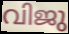
വിജു